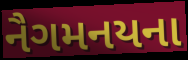
નૈગમનયના